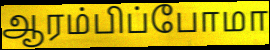
ஆரம்பிப்போமா